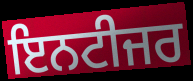
ਇਨਟੀਜਰ